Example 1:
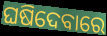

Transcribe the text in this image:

ଘଷିଦେବାରେ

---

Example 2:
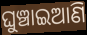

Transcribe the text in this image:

ଘୁଞ୍ଚାଇଆଣି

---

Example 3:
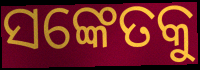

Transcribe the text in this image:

ସଙ୍କେତକୁ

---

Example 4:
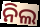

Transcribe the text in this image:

ନିଲ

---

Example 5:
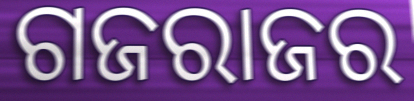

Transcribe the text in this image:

ଗଜରାଜର